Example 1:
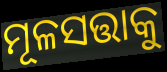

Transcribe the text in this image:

ମୂଳସତ୍ତାକୁ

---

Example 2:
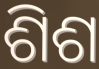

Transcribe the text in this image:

ଶିଶ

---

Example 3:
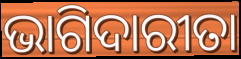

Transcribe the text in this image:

ଭାଗିଦାରୀତା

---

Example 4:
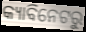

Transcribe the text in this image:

କ୍ୟାବିନେଟରୁ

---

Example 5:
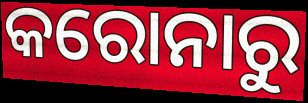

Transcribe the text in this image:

କରୋନାରୁ